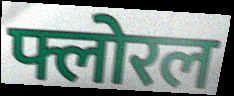
फ्लोरल